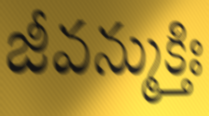
జీవన్ముక్తిః